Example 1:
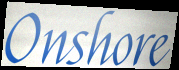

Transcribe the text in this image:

Onshore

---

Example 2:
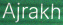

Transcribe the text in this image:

Ajrakh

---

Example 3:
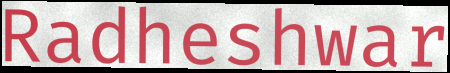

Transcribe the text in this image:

Radheshwar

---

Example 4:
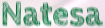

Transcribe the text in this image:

Natesa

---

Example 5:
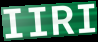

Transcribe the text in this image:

IIRI